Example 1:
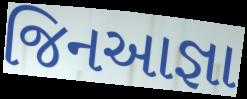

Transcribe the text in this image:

જિનઆજ્ઞા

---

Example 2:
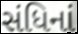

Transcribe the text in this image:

સંધિનાં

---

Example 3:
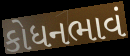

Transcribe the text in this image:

કોધનભાવં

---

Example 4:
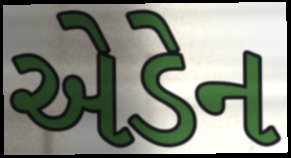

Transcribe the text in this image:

એડેન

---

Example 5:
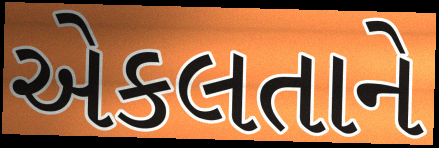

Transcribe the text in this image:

એકલતાને